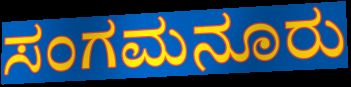
ಸಂಗಮನೂರು